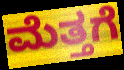
ಮೆತ್ತಗೆ